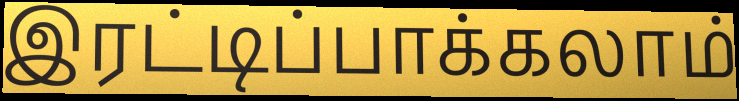
இரட்டிப்பாக்கலாம்